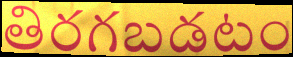
తిరగబడటం